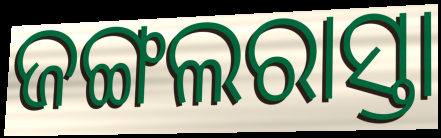
ଜଙ୍ଗଲରାସ୍ତା